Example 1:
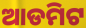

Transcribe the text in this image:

ଆଡମିଟ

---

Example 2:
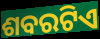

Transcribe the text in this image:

ଶବରଟିଏ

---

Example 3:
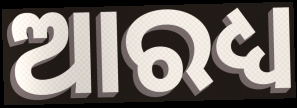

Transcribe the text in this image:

ଆରଧ୍ୟ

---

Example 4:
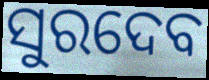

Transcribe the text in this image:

ସୁରଦେବ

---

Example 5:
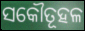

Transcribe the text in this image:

ସକୌତୂହଳ